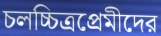
চলচ্চিত্রপ্রেমীদের